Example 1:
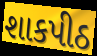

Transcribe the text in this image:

શાકપીઠ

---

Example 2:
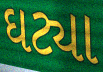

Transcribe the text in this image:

ઘટ્યા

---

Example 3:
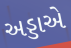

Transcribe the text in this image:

અડ્ડાએ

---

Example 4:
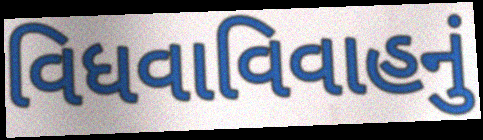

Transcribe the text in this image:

વિધવાવિવાહનું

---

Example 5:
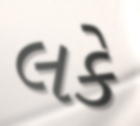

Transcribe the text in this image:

લકે